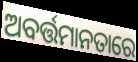
ଅବର୍ତ୍ତମାନତାରେ